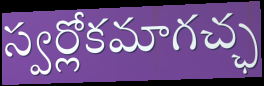
స్వర్లోకమాగచ్ఛ